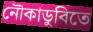
নৌকাডুবিতে